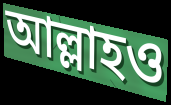
আল্লাহও